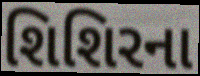
શિશિરના